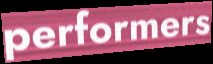
performers